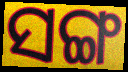
ସଙ୍ଗ